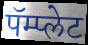
पॅम्प्लेट